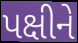
પક્ષીને